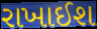
રાખાઈશ